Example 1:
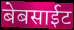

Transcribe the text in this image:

बेबसाईट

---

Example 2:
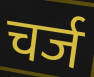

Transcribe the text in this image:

चर्ज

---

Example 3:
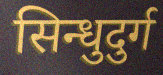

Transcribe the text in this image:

सिन्धुदुर्ग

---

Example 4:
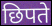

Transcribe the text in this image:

छिपते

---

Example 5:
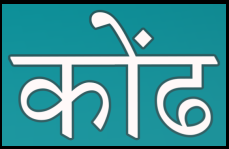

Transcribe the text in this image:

कोंढ